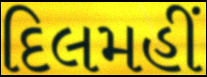
દિલમહીં